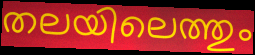
തലയിലെത്തും